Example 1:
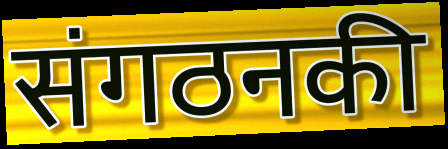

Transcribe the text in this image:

संगठनकी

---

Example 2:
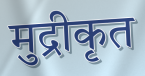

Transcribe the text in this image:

मुद्रीकृत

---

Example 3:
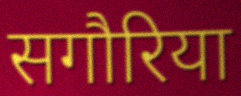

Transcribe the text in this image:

सगौरिया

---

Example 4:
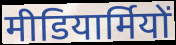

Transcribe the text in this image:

मीडियार्मियों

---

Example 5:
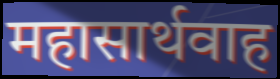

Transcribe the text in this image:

महासार्थवाह